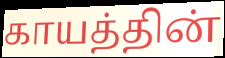
காயத்தின்